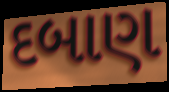
દબાણ